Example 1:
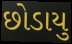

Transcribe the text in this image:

છોડાયુ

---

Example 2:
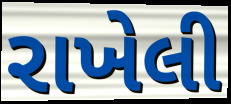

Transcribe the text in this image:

રાખેલી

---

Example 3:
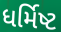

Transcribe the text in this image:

ધર્મિષ્ટ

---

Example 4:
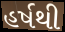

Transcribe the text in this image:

હર્ષથી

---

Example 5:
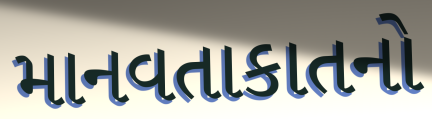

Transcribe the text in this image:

માનવતાકાતનો